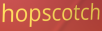
hopscotch